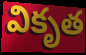
వికృత